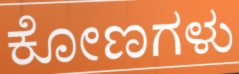
ಕೋಣಗಳು